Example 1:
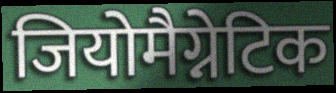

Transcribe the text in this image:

जियोमैग्नेटिक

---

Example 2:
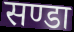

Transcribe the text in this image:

सण्डा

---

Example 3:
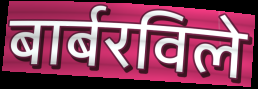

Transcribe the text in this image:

बार्बरविले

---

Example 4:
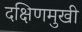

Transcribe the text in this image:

दक्षिणमुखी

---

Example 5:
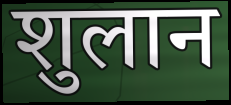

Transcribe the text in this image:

शुलान